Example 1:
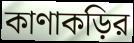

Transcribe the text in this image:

কাণাকড়ির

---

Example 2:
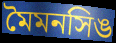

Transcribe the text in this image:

মৈমনসিঙ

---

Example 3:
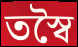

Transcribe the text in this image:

তস্বৈ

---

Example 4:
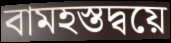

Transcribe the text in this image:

বামহস্তদ্বয়ে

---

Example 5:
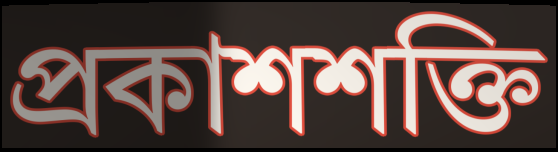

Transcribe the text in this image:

প্রকাশশক্তি